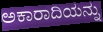
ಅಕಾರಾದಿಯನ್ನು